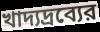
খাদ্যদ্রব্যের